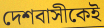
দেশবাসীকেই